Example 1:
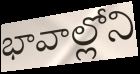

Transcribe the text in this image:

భావాల్లోని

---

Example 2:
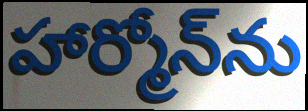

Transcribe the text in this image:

హార్మోన్‌ను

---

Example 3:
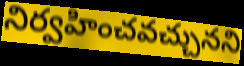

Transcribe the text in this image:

నిర్వహించవచ్చునని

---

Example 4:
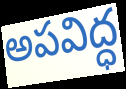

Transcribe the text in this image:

అపవిద్ధ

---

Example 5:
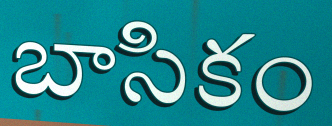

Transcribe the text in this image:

బాసికం